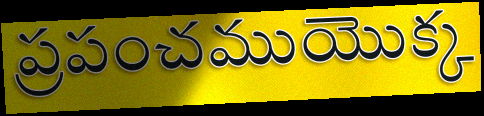
ప్రపంచముయొక్క